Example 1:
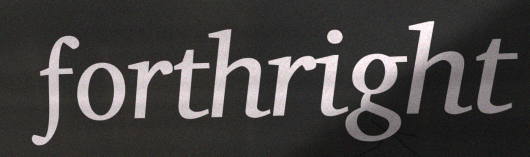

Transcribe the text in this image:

forthright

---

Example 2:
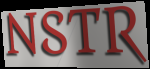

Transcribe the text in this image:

NSTR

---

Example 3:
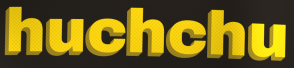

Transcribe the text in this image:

huchchu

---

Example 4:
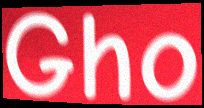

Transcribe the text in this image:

Gho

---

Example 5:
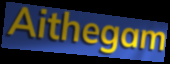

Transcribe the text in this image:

Aithegam